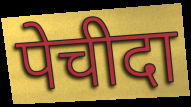
पेचीदा